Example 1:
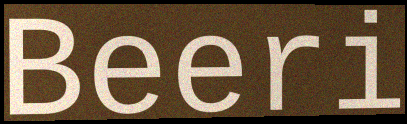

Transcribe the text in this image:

Beeri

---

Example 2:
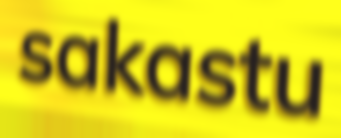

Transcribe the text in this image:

sakastu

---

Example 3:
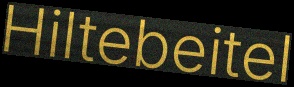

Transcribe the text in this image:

Hiltebeitel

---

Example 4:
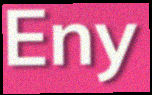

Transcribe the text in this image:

Eny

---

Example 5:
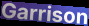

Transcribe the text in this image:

Garrison